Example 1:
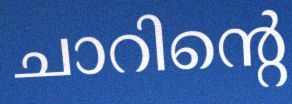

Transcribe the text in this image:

ചാറിന്റെ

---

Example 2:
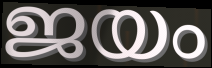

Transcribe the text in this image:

ജയം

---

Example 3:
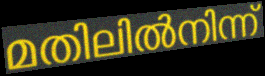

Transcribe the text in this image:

മതിലിൽനിന്ന്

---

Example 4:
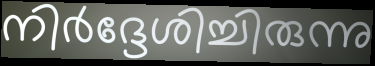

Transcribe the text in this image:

നിർദ്ദേശിച്ചിരുന്നു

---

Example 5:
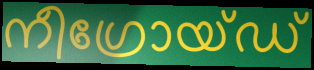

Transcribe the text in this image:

നീഗ്രോയ്ഡ്